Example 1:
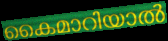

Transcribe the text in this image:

കൈമാറിയാൽ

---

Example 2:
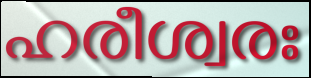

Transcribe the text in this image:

ഹരീശ്വരഃ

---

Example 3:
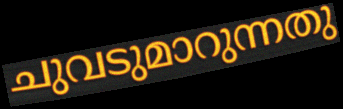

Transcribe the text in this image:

ചുവടുമാറുന്നതു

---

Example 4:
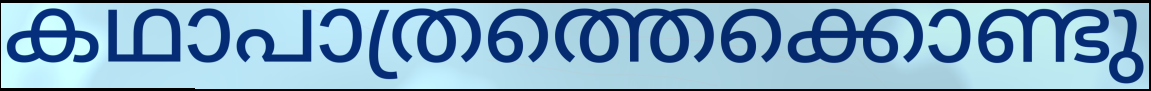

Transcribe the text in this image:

കഥാപാത്രത്തെക്കൊണ്ടു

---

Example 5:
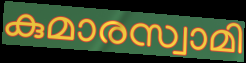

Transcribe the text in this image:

കുമാരസ്വാമി